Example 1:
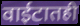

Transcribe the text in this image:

वाईटातही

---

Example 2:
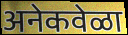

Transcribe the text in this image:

अनेकवेळा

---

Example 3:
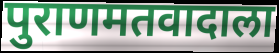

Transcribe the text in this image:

पुराणमतवादाला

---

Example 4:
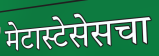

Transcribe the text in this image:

मेटास्टेसेसचा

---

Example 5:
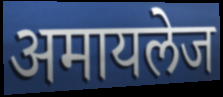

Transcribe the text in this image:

अमायलेज